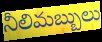
నీలిమబ్బులు